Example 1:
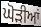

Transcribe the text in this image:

ਘੋੜੀਆਂ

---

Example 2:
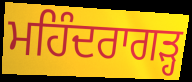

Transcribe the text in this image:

ਮਹਿੰਦਰਾਗੜ੍ਹ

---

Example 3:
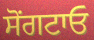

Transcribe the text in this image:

ਸੋਂਗਟਾਓ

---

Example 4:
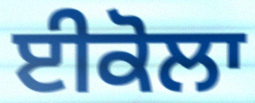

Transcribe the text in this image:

ਈਕੋਲਾ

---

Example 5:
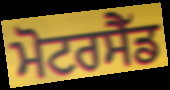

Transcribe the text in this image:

ਮੋਟਰਸੈੱਡ